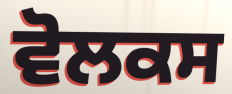
ਵੋਲਕਸ